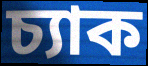
চ্যাক